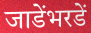
जाडेंभरडें